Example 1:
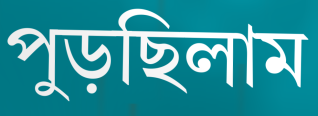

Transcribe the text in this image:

পুড়ছিলাম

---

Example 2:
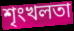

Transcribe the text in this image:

শৃংখলতা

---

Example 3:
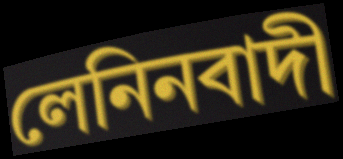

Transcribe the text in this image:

লেনিনবাদী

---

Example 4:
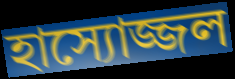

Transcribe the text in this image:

হাস্যোজ্জল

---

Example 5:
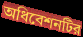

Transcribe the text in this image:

অধিবেশনটির